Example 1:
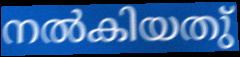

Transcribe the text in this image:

നൽകിയതു്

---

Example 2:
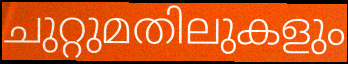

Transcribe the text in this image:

ചുറ്റുമതിലുകളും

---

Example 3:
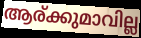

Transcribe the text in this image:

ആര്ക്കുമാവില്ല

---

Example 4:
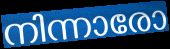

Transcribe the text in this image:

നിന്നാരോ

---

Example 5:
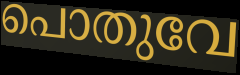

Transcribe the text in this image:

പൊതുവേ